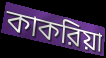
কাকরিয়া